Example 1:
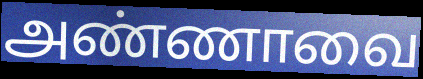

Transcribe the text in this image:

அண்ணாவை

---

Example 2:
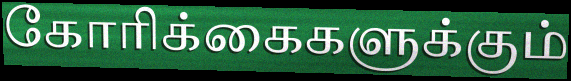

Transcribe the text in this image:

கோரிக்கைகளுக்கும்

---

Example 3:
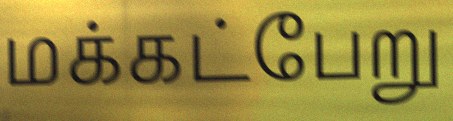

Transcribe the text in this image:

மக்கட்பேறு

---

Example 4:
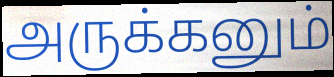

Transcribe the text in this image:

அருக்கனும்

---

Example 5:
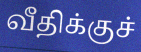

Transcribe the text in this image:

வீதிக்குச்